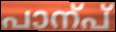
പാന്പ്